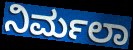
ನಿರ್ಮಲಾ